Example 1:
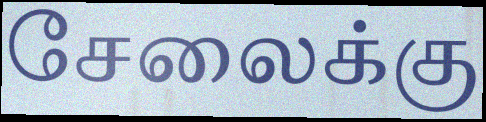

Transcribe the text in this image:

சேலைக்கு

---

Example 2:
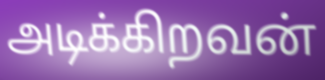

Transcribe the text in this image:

அடிக்கிறவன்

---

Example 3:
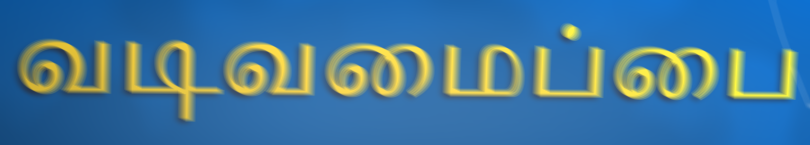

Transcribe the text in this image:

வடிவமைப்பை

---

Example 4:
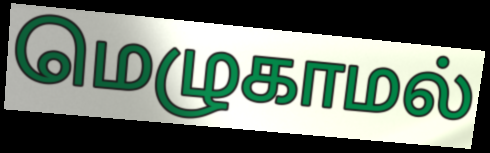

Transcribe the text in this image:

மெழுகாமல்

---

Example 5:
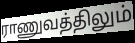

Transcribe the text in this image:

ராணுவத்திலும்